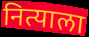
नित्याला